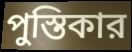
পুস্তিকার